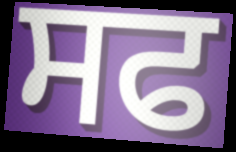
ਸਫ